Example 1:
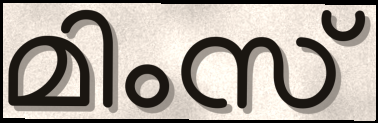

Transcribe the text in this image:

മിംസ്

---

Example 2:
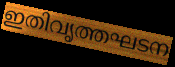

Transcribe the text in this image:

ഇതിവൃത്തഘടന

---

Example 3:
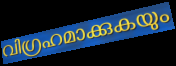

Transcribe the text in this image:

വിഗ്രഹമാക്കുകയും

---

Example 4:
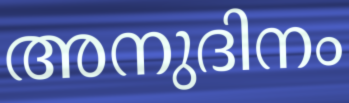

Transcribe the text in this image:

അനുദിനം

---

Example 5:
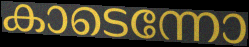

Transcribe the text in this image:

കാടെന്നോ